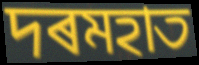
দৰমহাত